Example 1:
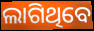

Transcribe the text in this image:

ଲାଗିଥିବେ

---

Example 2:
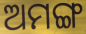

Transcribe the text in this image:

ଅମଙ୍ଗ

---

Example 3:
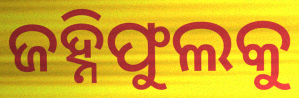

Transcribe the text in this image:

ଜହ୍ନିଫୁଲକୁ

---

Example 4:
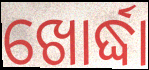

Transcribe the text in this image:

ଖୋର୍ଦ୍ଧା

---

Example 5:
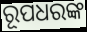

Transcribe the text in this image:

ରୂପଧରଙ୍କ